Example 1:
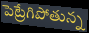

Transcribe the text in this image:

పెట్రేగిపోతున్న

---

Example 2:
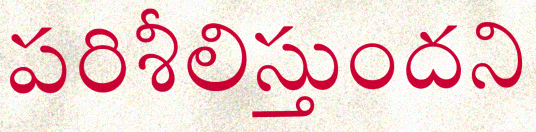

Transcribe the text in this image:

పరిశీలిస్తుందని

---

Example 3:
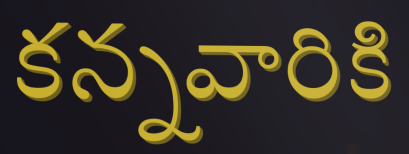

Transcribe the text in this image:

కన్నవారికి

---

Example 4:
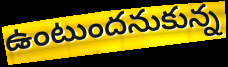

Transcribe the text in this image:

ఉంటుందనుకున్న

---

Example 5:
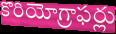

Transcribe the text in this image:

కొరియోగ్రాఫర్లు